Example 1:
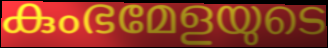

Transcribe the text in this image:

കുംഭമേളയുടെ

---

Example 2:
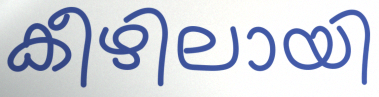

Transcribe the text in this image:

കീഴിലായി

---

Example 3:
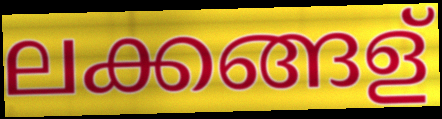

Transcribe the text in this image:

ലക്കങ്ങള്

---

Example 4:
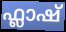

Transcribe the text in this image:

ഫ്ലാഷ്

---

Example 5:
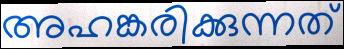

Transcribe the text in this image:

അഹങ്കരിക്കുന്നത്